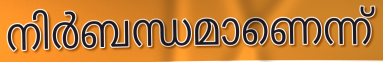
നിർബന്ധമാണെന്ന്